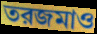
তরজমাও